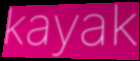
kayak